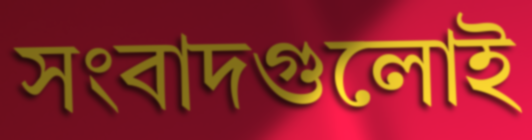
সংবাদগুলোই